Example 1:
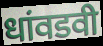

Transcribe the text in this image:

धांवडवी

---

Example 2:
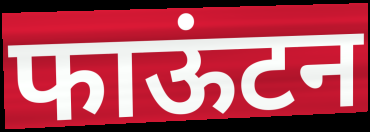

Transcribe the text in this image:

फाऊंटन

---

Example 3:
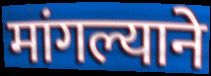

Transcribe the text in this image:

मांगल्याने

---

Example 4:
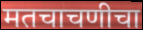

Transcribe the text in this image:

मतचाचणीचा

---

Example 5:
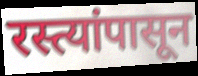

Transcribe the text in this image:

रस्त्यांपासून